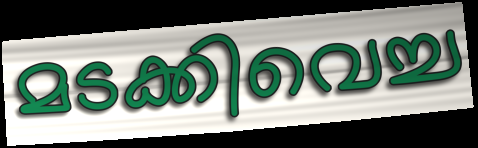
മടക്കിവെച്ച